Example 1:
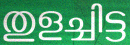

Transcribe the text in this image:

തുളച്ചിട്ട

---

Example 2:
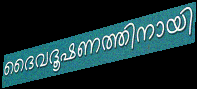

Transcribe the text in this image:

ദൈവദൂഷണത്തിനായി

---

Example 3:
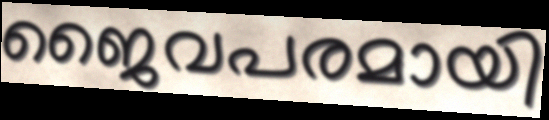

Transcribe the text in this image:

ജൈവപരമായി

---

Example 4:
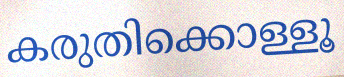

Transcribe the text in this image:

കരുതിക്കൊള്ളൂ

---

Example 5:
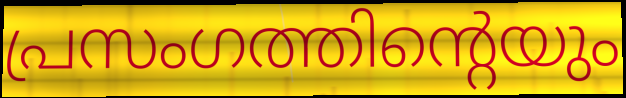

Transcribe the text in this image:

പ്രസംഗത്തിന്റെയും